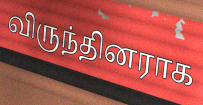
விருந்தினராக